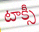
టాక్సీ